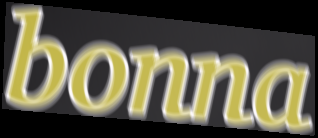
bonna